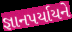
જ્ઞાનપર્યાયને